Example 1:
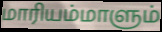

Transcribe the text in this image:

மாரியம்மாளும்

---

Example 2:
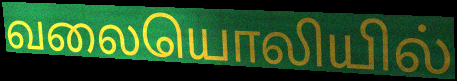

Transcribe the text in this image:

வலையொலியில்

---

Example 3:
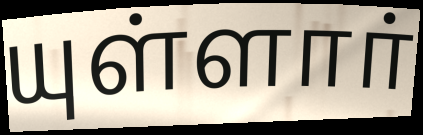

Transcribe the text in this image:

யுள்ளார்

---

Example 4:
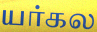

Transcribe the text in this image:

யர்கல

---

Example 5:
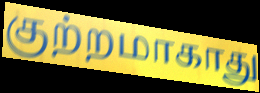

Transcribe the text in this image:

குற்றமாகாது